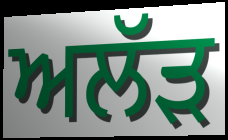
ਅਲੱੜ